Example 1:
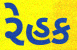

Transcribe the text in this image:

રેહક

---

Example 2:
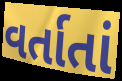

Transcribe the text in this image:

વર્તાતાં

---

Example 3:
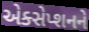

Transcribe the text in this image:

એક્સેપ્શનને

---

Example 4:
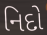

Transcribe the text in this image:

નિદો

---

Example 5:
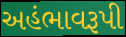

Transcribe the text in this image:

અહંભાવરૂપી